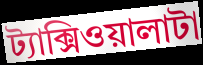
ট্যাক্সিওয়ালাটা